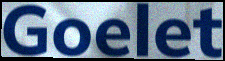
Goelet